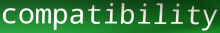
compatibility